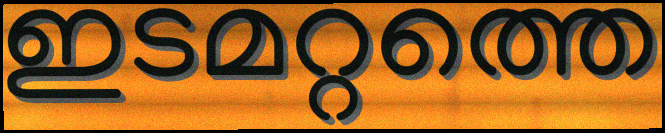
ഇടമറ്റത്തെ